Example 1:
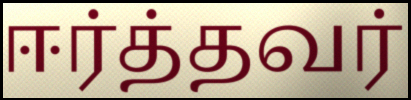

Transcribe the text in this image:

ஈர்த்தவர்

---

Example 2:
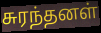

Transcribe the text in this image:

சுரந்தனள்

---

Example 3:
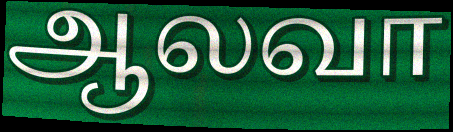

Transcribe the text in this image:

ஆலவா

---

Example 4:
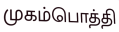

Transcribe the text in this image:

முகம்பொத்தி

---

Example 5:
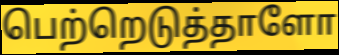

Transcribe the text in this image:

பெற்றெடுத்தாளோ